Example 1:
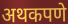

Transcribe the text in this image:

अथकपणे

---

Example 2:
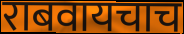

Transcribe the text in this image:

राबवायचाच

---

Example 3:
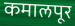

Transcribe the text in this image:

कमालपूर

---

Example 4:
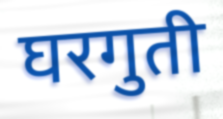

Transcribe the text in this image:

घरगुती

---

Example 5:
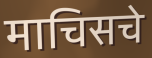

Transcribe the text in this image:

माचिसचे